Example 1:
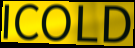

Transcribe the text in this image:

ICOLD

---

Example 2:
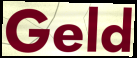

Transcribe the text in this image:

Geld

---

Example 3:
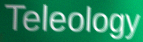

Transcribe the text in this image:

Teleology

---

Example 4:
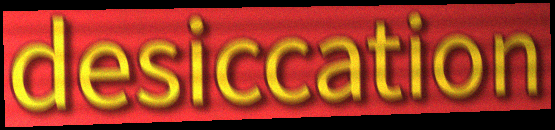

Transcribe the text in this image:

desiccation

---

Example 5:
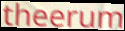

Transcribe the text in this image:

theerum